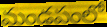
మండపంలో